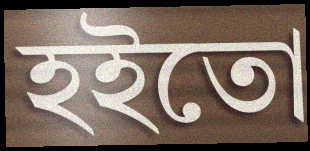
হইতো